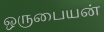
ஒருபையன்